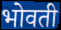
भोवती